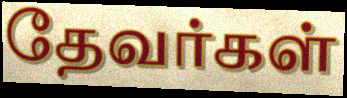
தேவர்கள்